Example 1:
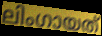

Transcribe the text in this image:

ലിംഗായത്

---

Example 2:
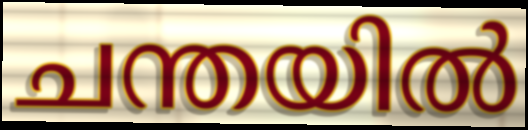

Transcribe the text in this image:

ചന്തയിൽ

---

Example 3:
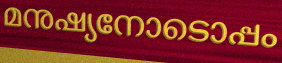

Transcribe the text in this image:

മനുഷ്യനോടൊപ്പം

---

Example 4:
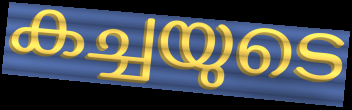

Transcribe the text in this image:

കച്ചയുടെ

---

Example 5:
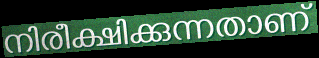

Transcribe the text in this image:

നിരീക്ഷിക്കുന്നതാണ്